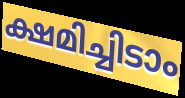
ക്ഷമിച്ചിടാം